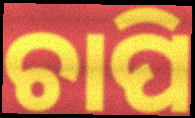
ଚାପି